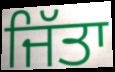
ਜਿੱਤਾ